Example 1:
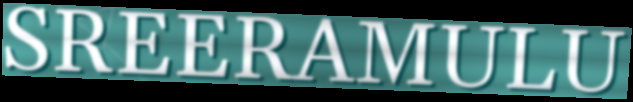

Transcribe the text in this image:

SREERAMULU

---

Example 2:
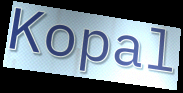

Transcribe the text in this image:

Kopal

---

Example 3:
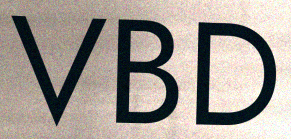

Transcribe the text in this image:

VBD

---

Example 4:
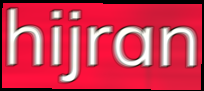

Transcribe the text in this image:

hijran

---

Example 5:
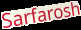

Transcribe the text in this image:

Sarfarosh